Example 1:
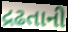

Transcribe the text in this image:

દ્રઢતાની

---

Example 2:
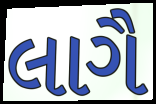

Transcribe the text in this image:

લાગૈ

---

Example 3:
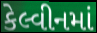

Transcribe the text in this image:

કેલ્વીનમાં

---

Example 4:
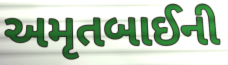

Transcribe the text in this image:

અમૃતબાઈની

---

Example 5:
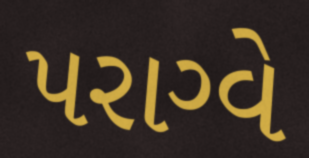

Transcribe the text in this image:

પરાગ્વે